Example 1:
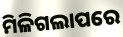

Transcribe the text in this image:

ମିଳିଗଲାପରେ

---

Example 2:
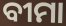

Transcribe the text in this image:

ବୀମା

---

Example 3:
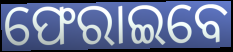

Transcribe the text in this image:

ଫେରାଇବେ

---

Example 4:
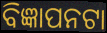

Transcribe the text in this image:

ବିଜ୍ଞାପନଟା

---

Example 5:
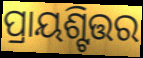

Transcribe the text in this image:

ପ୍ରାୟଶ୍ଟିତ୍ତର